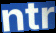
ntr